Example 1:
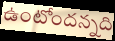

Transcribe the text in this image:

ఉంటోందన్నది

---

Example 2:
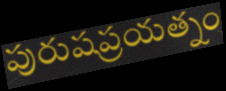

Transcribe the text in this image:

పురుషప్రయత్నం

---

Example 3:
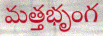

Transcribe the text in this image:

మత్తభృంగ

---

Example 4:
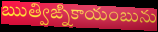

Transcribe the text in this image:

ఋత్విఙ్నికాయంబును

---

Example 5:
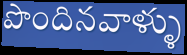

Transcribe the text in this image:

పొందినవాళ్ళు